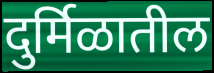
दुर्मिळातील